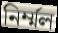
নির্ম্মল